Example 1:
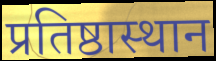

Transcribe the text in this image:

प्रतिष्ठास्थान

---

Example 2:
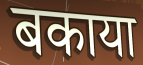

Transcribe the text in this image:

बकाया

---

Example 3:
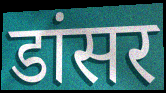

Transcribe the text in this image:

डांसर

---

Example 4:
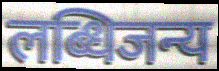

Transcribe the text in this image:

लब्धिजन्य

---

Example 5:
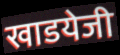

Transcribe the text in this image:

खाडयेजी